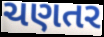
ચણતર